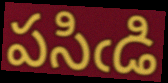
పసిఁడి